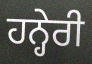
ਹਨ੍ਹੇਰੀ